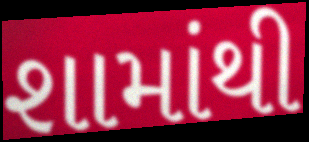
શામાંથી